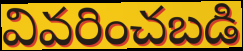
వివరించబడి